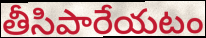
తీసిపారేయటం